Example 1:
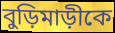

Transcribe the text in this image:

বুড়িমাড়ীকে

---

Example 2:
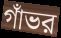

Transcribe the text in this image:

গাঁভর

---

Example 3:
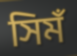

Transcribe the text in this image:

সিমঁ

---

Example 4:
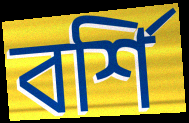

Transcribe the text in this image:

বর্শি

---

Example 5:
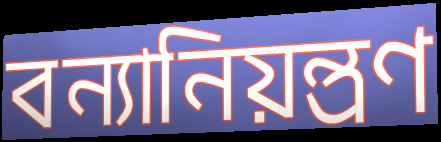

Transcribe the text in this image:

বন্যানিয়ন্ত্রণ